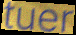
tuer